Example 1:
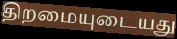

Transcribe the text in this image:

திறமையுடையது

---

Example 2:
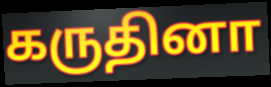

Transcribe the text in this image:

கருதினா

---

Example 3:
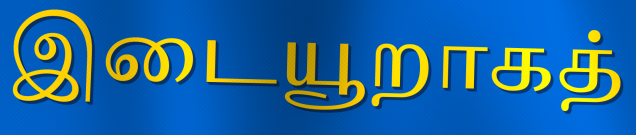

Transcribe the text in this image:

இடையூறாகத்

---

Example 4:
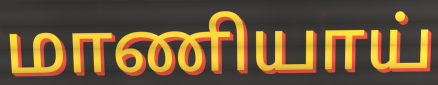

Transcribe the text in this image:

மாணியாய்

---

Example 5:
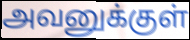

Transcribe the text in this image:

அவனுக்குள்